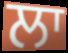
ਲਾ